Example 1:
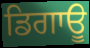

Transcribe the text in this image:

ਡਿਗਾਊ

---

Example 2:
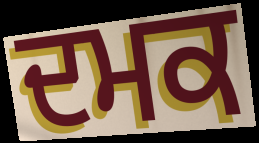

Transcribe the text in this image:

ਦਮਕ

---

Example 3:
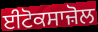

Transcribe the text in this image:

ਈਟੋਕਸਾਜ਼ੋਲ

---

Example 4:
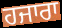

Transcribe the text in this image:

ਹਜਾਰਾ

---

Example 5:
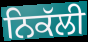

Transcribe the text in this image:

ਨਿਕੱਲੀ